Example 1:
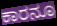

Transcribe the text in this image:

ಕಾರನೂ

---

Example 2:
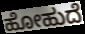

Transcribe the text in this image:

ಹೋಹುದೆ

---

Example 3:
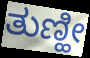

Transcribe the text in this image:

ತುಣ್ಹೀ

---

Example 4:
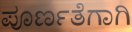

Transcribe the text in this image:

ಪೂರ್ಣತೆಗಾಗಿ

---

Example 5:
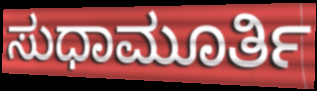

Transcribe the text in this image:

ಸುಧಾಮೂರ್ತಿ